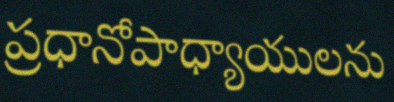
ప్రధానోపాధ్యాయులను